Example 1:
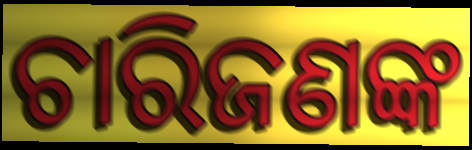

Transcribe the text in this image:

ଚାରିଜଣଙ୍କ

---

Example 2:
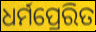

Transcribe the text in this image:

ଧର୍ମପ୍ରେରିତ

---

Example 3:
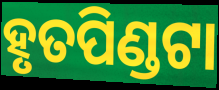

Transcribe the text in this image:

ହୃତପିଣ୍ଡଟା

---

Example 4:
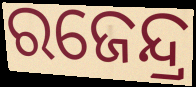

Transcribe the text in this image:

ରଜେନ୍ଦ୍ର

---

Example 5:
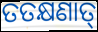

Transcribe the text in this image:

ତତକ୍ଷଣାତ୍